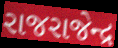
રાજરાજેન્દ્ર